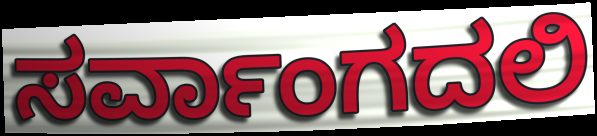
ಸರ್ವಾಂಗದಲಿ